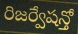
రిజర్వేషన్తో